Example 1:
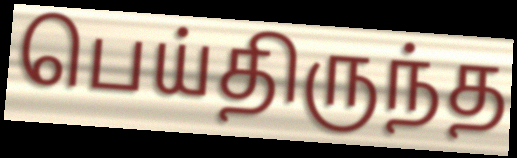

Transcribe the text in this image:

பெய்திருந்த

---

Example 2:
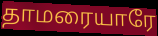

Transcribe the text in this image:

தாமரையாரே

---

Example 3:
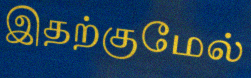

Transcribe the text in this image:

இதற்குமேல்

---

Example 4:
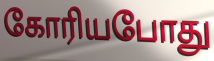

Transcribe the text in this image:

கோரியபோது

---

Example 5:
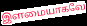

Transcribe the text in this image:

இளமையாகவே